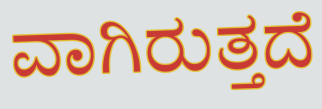
ವಾಗಿರುತ್ತದೆ